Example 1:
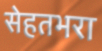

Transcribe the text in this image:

सेहतभरा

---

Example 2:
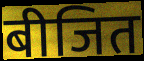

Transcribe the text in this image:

बीजित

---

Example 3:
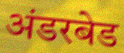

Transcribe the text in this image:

अंडरबेड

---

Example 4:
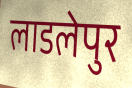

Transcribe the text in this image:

लाडलेपुर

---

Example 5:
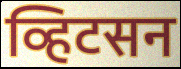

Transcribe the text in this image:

व्हिटसन